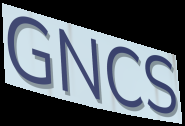
GNCS